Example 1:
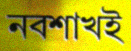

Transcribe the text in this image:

নবশাখই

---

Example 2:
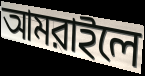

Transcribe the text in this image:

আমরাইলে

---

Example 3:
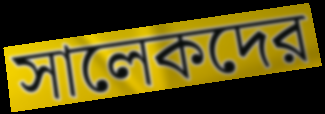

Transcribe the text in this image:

সালেকদের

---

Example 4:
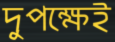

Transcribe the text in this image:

দুপক্ষেই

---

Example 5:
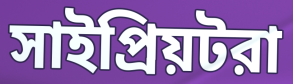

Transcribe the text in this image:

সাইপ্রিয়টরা